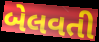
બેલવતી